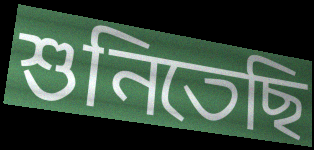
শুনিতেছি